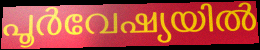
പൂർവേഷ്യയിൽ